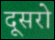
दूसरो